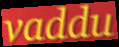
vaddu